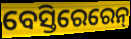
ବେସ୍ତିରେରେନ୍